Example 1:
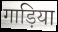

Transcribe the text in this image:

गाड़िया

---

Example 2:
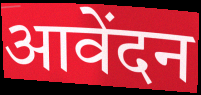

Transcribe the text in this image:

आवेंदन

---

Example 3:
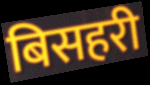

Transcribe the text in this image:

बिसहरी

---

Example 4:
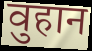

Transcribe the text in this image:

वुहान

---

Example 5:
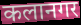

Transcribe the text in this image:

कलानगर